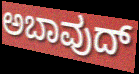
ಅಬಾವುದ್